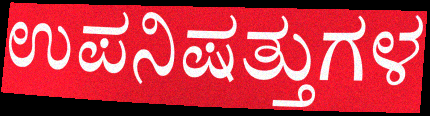
ಉಪನಿಷತ್ತುಗಳ